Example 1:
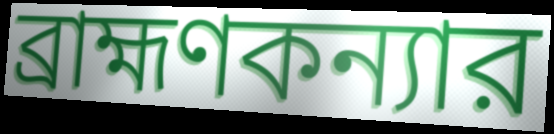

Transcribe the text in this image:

ব্রাহ্মণকন্যার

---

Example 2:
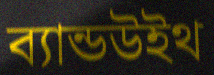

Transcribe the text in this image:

ব্যান্ডউইথ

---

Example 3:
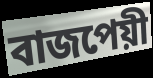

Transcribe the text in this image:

বাজপেয়ী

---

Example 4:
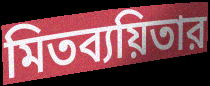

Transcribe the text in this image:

মিতব্যয়িতার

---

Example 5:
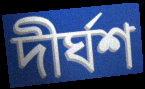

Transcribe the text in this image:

দীর্ঘশ